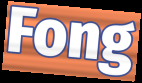
Fong